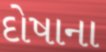
દોષાના